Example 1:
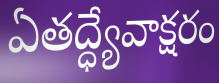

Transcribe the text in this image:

ఏతద్ధ్యేవాక్షరం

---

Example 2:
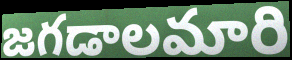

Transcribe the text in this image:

జగడాలమారి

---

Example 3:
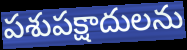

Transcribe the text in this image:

పశుపక్షాదులను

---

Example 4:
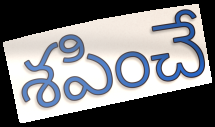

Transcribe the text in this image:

శపించే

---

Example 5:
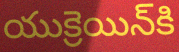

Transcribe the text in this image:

యుక్రెయిన్‌కి